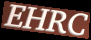
EHRC